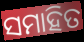
ସମାହିତ